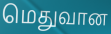
மெதுவான